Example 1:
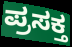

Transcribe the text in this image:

ಪ್ರಸಕ್ತ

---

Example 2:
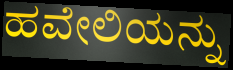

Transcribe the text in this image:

ಹವೇಲಿಯನ್ನು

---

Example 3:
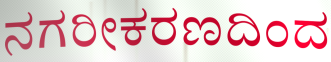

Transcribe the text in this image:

ನಗರೀಕರಣದಿಂದ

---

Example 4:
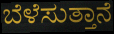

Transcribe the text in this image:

ಬೆಳೆಸುತ್ತಾನೆ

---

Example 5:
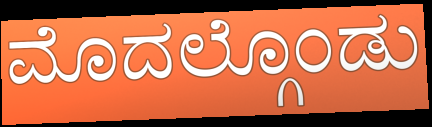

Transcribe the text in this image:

ಮೊದಲ್ಗೊಂಡು